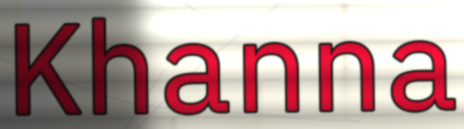
Khanna